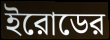
ইরোডের